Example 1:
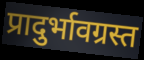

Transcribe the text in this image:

प्रादुर्भावग्रस्त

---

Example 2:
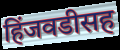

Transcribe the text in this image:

हिंजवडीसह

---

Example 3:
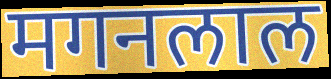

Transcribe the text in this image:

मगनलाल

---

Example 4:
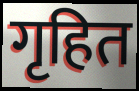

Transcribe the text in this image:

गृहित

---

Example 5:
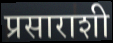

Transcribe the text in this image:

प्रसाराशी